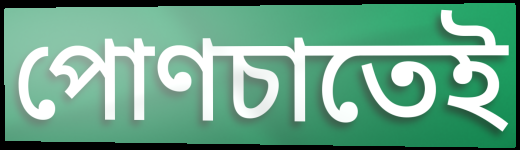
পোণচাতেই